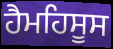
ਹੈਮਹਿਸੂਸ